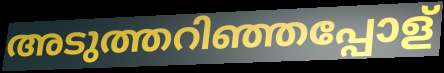
അടുത്തറിഞ്ഞപ്പോള്